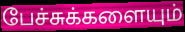
பேச்சுக்களையும்